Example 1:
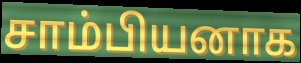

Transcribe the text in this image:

சாம்பியனாக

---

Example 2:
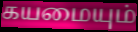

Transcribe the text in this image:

கயமையும்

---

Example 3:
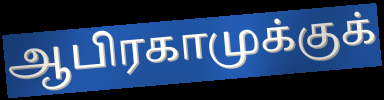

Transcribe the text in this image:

ஆபிரகாமுக்குக்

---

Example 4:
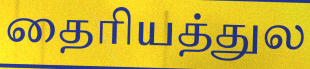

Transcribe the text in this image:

தைரியத்துல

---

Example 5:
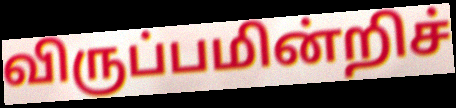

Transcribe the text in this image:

விருப்பமின்றிச்